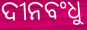
ଦୀନବଂଧୁ